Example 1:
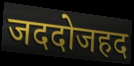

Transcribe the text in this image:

जददोजहद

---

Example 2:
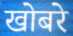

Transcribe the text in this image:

खोबरे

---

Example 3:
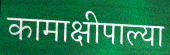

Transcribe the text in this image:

कामाक्षीपाल्या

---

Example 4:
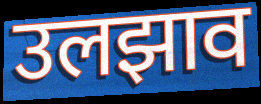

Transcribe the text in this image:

उलझाव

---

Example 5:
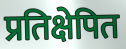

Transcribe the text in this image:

प्रतिक्षेपित